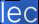
lec